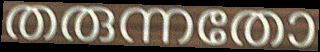
തരുന്നതോ